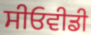
ਸੀਓਵੀਡੀ